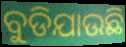
ବୁଡିଯାଉଛି